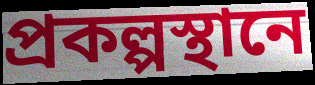
প্রকল্পস্থানে